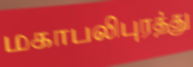
மகாபலிபுரத்து